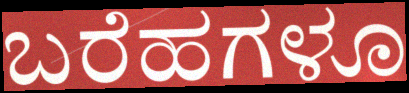
ಬರೆಹಗಳೂ